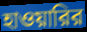
হাওয়ারির